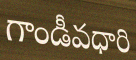
గాండీవధారి